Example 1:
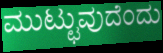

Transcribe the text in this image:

ಮುಟ್ಟುವುದೆಂದು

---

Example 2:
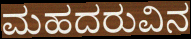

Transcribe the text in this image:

ಮಹದರುವಿನ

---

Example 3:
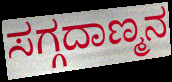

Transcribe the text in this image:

ಸಗ್ಗದಾಣ್ಮನ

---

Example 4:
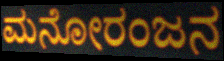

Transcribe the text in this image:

ಮನೋರಂಜನ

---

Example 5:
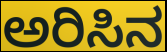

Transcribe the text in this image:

ಅರಿಸಿನ